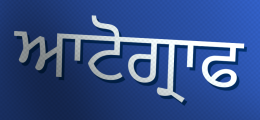
ਆਟੋਗ੍ਰਾਫ